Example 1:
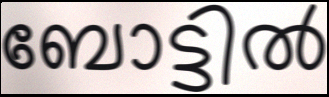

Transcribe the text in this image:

ബോട്ടിൽ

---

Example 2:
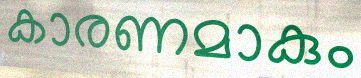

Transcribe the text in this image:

കാരണമാകും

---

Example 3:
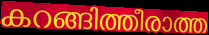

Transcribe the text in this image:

കറങ്ങിത്തീരാത്ത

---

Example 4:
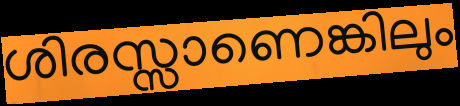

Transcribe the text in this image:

ശിരസ്സാണെങ്കിലും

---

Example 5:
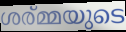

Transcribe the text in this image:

ശര്മ്മയുടെ